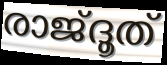
രാജ്ദൂത്